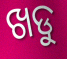
ଖଡୁ